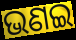
ଭଣଇ